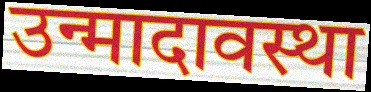
उन्मादावस्था